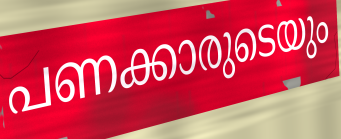
പണക്കാരുടെയും